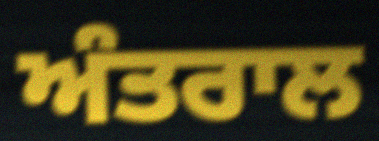
ਅੰਤਰਾਲ